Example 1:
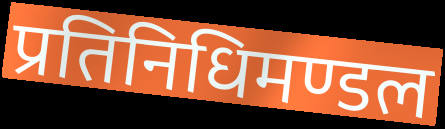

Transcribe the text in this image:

प्रतिनिधिमण्डल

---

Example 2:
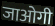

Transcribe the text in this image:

जाओगी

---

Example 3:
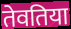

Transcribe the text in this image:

तेवतिया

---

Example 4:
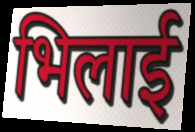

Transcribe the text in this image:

भिलाई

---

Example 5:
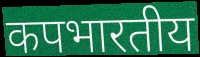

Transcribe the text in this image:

कपभारतीय